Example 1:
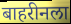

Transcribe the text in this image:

बाहरीनला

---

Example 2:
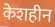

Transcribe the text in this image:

केशहीन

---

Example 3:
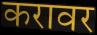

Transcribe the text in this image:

करावर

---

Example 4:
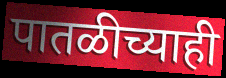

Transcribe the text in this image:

पातळीच्याही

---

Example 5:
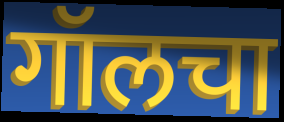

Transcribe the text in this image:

गॉलचा